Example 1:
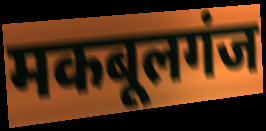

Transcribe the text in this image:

मकबूलगंज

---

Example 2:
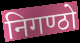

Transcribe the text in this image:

निगण्ठो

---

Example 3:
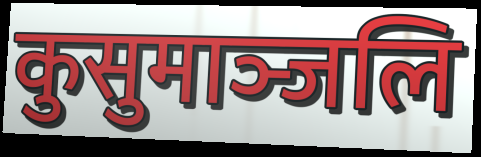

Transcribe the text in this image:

कुसुमाञ्जलि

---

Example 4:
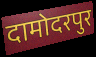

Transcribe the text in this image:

दामोदरपुर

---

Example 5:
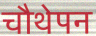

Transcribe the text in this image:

चौथेपन